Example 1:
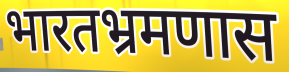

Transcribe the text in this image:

भारतभ्रमणास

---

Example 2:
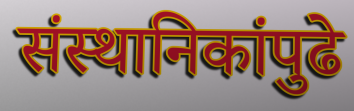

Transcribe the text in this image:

संस्थानिकांपुढे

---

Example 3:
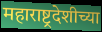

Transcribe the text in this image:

महाराष्ट्रदेशीच्या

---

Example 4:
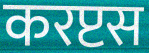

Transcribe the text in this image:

करप्टस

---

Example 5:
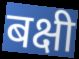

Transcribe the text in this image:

बक्षी